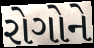
રોગોને